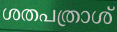
ശതപത്രാശ്